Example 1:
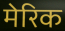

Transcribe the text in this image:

मेरिक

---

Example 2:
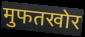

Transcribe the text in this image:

मुफतखोर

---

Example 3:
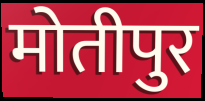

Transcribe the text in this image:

मोतीपुर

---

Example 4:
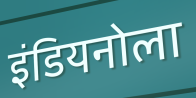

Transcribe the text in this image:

इंडियनोला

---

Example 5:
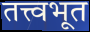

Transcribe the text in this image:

तत्त्वभूत